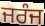
ਜਰੰਜ